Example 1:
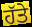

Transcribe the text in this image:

ਹੱਤੇ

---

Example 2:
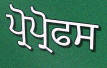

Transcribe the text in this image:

ਪ੍ਰੋਪ੍ਰੋਫਸ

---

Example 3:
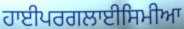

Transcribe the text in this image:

ਹਾਈਪਰਗਲਾਈਸਿਮੀਆ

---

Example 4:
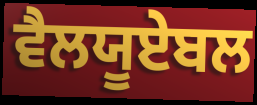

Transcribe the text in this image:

ਵੈਲਯੂਏਬਲ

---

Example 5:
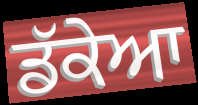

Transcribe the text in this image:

ਡੱਕੇਆ